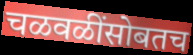
चळवळींसोबतच